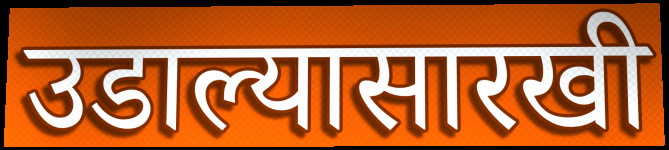
उडाल्यासारखी